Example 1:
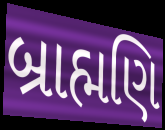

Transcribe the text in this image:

બ્રાહ્મણિ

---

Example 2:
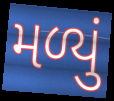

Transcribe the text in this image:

મળ્યું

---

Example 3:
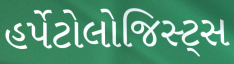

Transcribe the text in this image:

હર્પેટોલોજિસ્ટ્સ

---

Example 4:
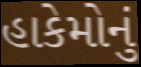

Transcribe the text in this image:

હાકેમોનું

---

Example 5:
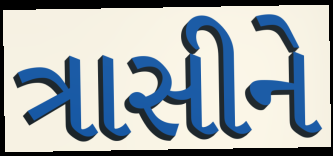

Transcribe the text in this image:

ત્રાસીને